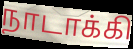
நாடாக்கி